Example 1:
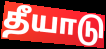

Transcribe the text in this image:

தீயாடு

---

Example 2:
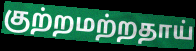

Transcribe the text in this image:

குற்றமற்றதாய்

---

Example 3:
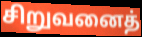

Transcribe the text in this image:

சிறுவனைத்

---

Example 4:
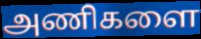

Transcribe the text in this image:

அணிகளை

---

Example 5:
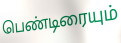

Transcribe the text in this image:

பெண்டிரையும்